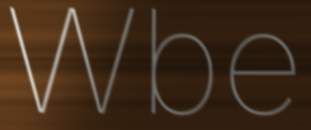
Wbe